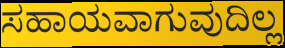
ಸಹಾಯವಾಗುವುದಿಲ್ಲ